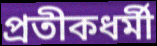
প্রতীকধর্মী